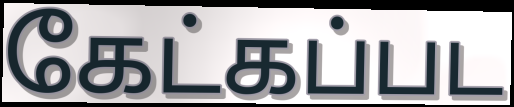
கேட்கப்பட